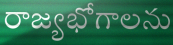
రాజ్యభోగాలను